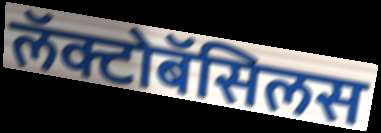
लॅक्टोबॅसिलस